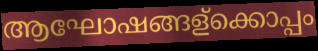
ആഘോഷങ്ങള്ക്കൊപ്പം